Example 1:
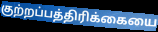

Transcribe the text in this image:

குற்றப்பத்திரிக்கையை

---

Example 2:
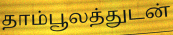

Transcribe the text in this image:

தாம்பூலத்துடன்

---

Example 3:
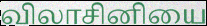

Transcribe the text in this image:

விலாசினியை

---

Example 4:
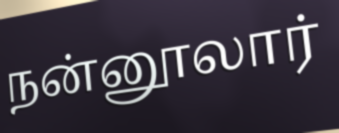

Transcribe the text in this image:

நன்னூலார்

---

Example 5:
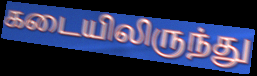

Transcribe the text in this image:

கடையிலிருந்து